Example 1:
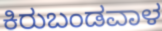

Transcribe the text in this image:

ಕಿರುಬಂಡವಾಳ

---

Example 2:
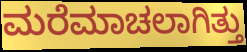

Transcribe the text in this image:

ಮರೆಮಾಚಲಾಗಿತ್ತು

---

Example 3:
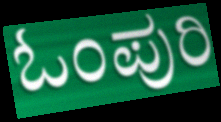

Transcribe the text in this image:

ಓಂಪುರಿ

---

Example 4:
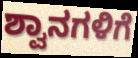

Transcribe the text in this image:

ಶ್ವಾನಗಳಿಗೆ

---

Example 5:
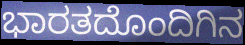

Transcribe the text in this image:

ಭಾರತದೊಂದಿಗಿನ